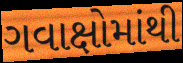
ગવાક્ષોમાંથી